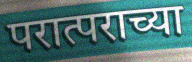
परात्पराच्या